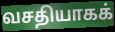
வசதியாகக்